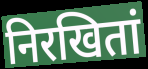
निरखितां